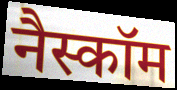
नैस्कॉम